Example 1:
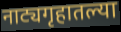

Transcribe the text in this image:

नाट्यगृहातल्या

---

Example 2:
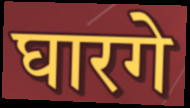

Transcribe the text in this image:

घारगे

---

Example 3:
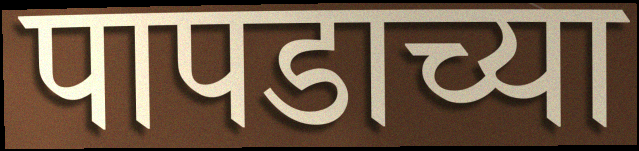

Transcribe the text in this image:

पापडाच्या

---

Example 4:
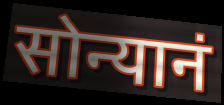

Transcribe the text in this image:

सोन्यानं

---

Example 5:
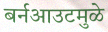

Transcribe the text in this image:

बर्नआउटमुळे